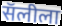
सॅलीला